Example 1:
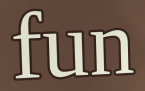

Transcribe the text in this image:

fun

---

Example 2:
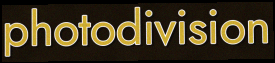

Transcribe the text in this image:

photodivision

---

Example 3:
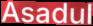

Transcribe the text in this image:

Asadul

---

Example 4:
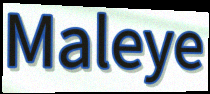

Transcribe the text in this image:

Maleye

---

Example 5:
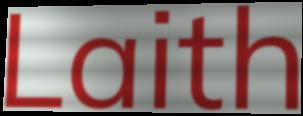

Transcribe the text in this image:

Laith